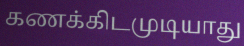
கணக்கிடமுடியாது